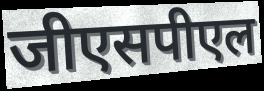
जीएसपीएल